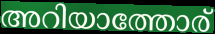
അറിയാത്തോര്